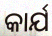
କାର୍ଯ